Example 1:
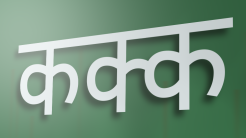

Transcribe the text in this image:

कक्क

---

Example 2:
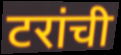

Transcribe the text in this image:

टरांची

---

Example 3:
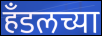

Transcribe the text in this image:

हँडलच्या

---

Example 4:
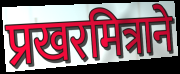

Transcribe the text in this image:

प्रखरमित्राने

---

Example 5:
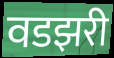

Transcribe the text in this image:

वडझरी